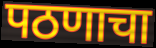
पठणाचा